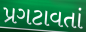
પ્રગટાવતાં